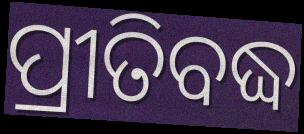
ପ୍ରୀତିବଦ୍ଧ